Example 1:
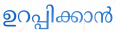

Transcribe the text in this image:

ഉറപ്പിക്കാൻ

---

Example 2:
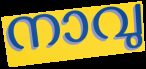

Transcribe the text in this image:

നാവു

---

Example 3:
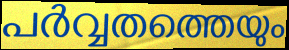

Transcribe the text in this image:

പർവ്വതത്തെയും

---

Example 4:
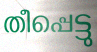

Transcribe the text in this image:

തീപ്പെട്ടു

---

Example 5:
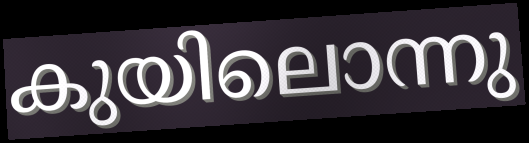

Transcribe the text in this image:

കുയിലൊന്നു